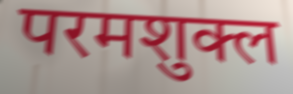
परमशुक्ल